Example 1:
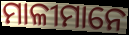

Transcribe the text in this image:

ମାଳୀମାନେ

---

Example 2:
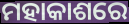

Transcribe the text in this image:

ମହାକାଶରେ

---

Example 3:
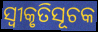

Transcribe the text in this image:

ସ୍ଵୀକୃତିସୂଚକ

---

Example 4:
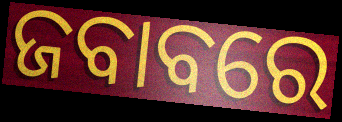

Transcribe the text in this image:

ଜବାବରେ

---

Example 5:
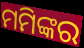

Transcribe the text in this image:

ମମିଙ୍କର